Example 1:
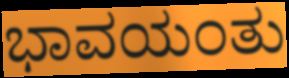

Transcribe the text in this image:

ಭಾವಯಂತು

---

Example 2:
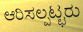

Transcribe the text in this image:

ಆರಿಸಲ್ಪಟ್ಟರು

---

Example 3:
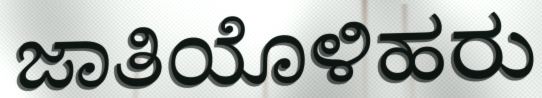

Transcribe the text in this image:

ಜಾತಿಯೊಳಿಹರು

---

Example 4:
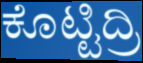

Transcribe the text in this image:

ಕೊಟ್ಟಿದ್ರಿ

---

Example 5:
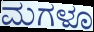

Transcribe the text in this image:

ಮಗಳೂ